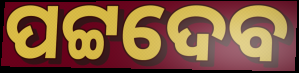
ପଟ୍ଟଦେବ